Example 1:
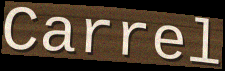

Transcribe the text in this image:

Carrel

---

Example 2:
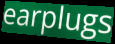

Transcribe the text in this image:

earplugs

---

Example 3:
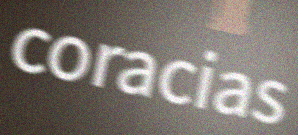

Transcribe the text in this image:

coracias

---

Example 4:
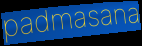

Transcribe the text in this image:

padmasana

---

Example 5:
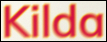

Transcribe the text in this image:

Kilda